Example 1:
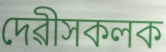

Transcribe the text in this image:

দেৱীসকলক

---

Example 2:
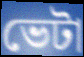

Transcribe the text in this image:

ভেটা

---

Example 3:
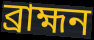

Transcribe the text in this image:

ব্ৰাহ্মন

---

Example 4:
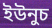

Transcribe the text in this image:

ইউনুচ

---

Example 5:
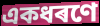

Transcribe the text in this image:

একধৰণে